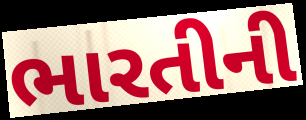
ભારતીની